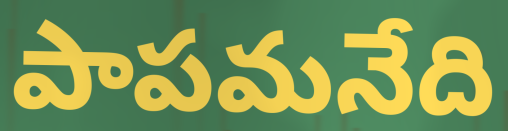
పాపమనేది